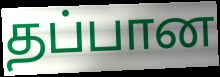
தப்பான